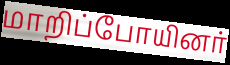
மாறிப்போயினர்